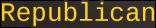
Republican